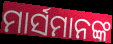
ମାର୍ସମାନଙ୍କ